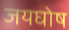
जयघोष